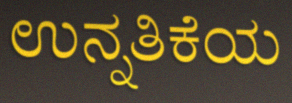
ಉನ್ನತಿಕೆಯ